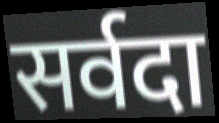
सर्वदा